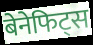
बेनेफिट्स